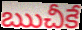
ఋచీకే